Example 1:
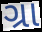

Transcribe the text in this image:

ગ્રા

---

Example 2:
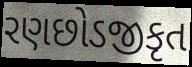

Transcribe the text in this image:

રણછોડજીકૃત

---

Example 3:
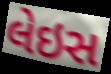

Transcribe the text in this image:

લેઇસ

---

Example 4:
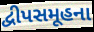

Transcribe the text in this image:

દ્વીપસમૂહના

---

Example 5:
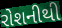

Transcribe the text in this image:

રોશનીથી